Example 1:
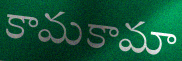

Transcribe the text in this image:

కామకామా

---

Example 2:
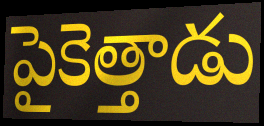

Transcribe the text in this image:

పైకెత్తాడు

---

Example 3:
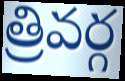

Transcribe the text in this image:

త్రివర్గ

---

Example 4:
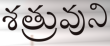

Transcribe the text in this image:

శత్రువుని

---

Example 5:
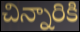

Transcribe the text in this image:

చిన్నారికి